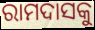
ରାମଦାସକୁ